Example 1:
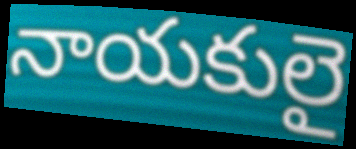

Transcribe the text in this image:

నాయకులై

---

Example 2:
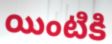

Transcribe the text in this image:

యింటికి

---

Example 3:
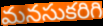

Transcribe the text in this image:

మనసుకరిగి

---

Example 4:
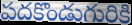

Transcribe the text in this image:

పదకొండుగురికి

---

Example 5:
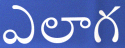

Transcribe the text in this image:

ఎలాగ